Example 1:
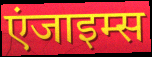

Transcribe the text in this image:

एंजाइम्‍स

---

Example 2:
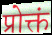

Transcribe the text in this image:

प्रोक्तं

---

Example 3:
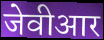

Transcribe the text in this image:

जेवीआर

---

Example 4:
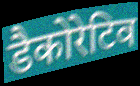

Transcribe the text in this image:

डैकोरेटिव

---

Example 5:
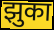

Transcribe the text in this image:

झुका